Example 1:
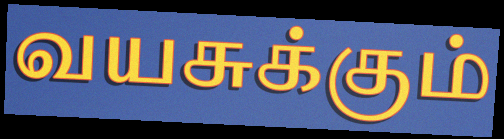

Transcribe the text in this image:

வயசுக்கும்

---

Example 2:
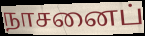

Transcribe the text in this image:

நாசனைப்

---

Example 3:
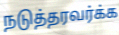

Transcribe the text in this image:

நடுத்தரவர்க்க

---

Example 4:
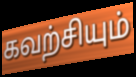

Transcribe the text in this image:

கவற்சியும்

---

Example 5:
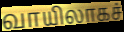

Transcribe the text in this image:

வாயிலாகச்